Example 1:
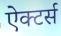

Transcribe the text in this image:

ऐक्टर्स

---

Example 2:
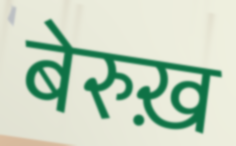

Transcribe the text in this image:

बेरुख़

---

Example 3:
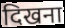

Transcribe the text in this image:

दिखना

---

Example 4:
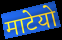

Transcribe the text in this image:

माटेयो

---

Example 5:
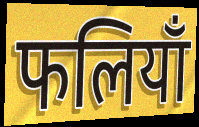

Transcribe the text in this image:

फलियाँ